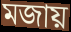
মজায়